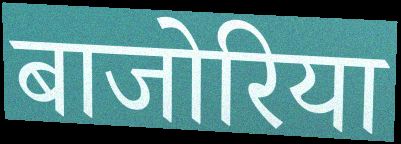
बाजोरिया